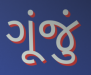
ગૂંજું